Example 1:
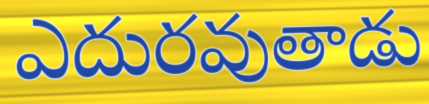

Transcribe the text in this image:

ఎదురవుతాడు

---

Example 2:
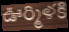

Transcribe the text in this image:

ఊర్మిళకి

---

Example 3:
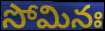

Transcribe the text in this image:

సోమినః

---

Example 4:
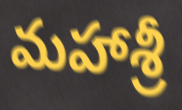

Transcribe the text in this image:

మహాశ్రీ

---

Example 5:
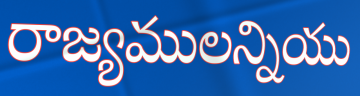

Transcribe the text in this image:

రాజ్యములన్నియు